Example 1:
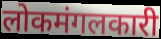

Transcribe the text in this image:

लोकमंगलकारी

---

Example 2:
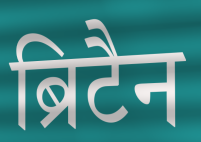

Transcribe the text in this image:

ब्रिटैन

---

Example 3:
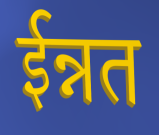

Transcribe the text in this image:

ईन्नत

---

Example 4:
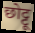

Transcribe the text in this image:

छोट्टू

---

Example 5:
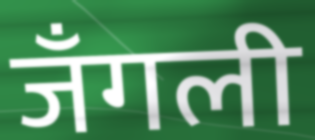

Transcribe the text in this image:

जँगली